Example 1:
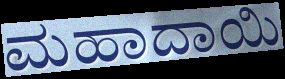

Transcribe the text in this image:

ಮಹಾದಾಯಿ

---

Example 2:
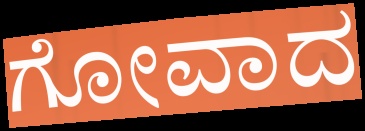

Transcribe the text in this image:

ಗೋವಾದ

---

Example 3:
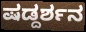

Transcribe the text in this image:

ಷಡ್ದರ್ಶನ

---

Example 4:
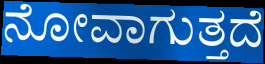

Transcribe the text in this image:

ನೋವಾಗುತ್ತದೆ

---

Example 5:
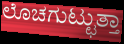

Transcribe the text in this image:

ಲೊಚಗುಟ್ಟುತ್ತಾ